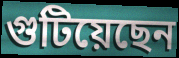
গুটিয়েছেন